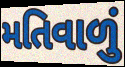
મતિવાળું